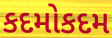
કદમોકદમ